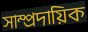
সাম্প্ৰদায়িক